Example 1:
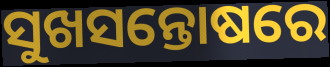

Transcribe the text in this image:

ସୁଖସନ୍ତୋଷରେ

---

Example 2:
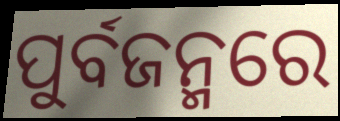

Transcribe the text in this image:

ପୁର୍ବଜନ୍ମରେ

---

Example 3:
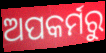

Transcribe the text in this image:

ଅପକର୍ମରୁ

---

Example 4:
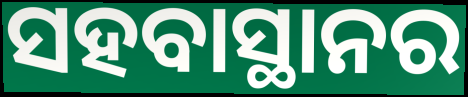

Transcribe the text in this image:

ସହବାସ୍ଥାନର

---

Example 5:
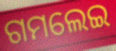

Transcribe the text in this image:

ଗମଲେଇ